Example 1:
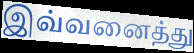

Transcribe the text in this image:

இவ்வனைத்து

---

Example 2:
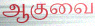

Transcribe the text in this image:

ஆகுவை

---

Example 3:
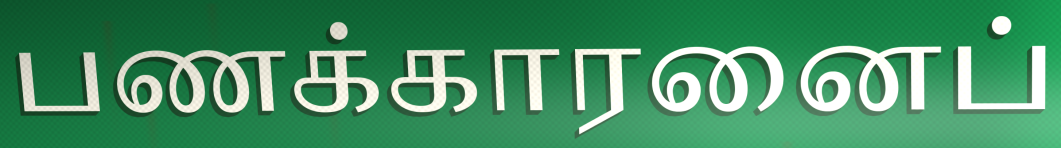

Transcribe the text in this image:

பணக்காரனைப்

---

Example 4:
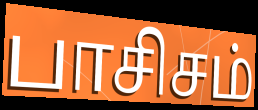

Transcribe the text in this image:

பாசிசம்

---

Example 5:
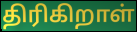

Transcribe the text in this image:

திரிகிறாள்